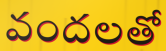
వందలతో